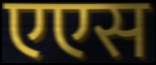
एएस